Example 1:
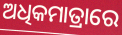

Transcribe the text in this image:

ଅଧିକମାତ୍ରାରେ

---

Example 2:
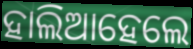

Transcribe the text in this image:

ହାଲିଆହେଲେ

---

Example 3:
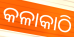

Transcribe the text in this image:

କଳାକାଠି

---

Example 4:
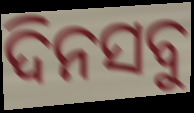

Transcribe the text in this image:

ଦିନସବୁ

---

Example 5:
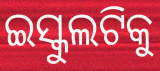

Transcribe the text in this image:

ଇସ୍କୁଲଟିକୁ